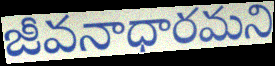
జీవనాధారమని